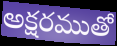
అక్షరముతో